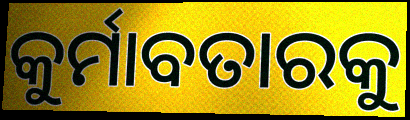
କୁର୍ମାବତାରକୁ